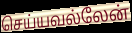
செய்யவல்லேன்